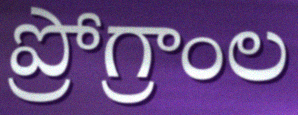
ప్రోగ్రాంల